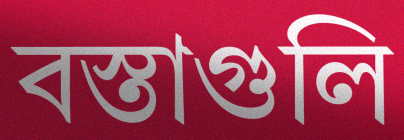
বস্তাগুলি